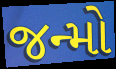
જન્મો